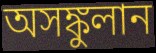
অসঙ্কুলান